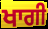
ਖਾਗੀ